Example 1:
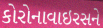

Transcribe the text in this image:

કોરોનાવાઇરસને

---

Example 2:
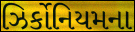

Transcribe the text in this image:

ઝિર્કોનિયમના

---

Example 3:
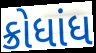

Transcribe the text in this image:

ક્રોધાંધ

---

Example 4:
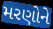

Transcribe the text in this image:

મરણોને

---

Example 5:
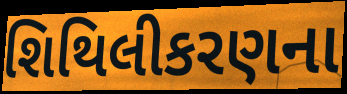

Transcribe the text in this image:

શિથિલીકરણના